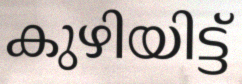
കുഴിയിട്ട്